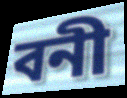
বনী